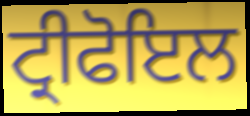
ਟ੍ਰੀਫੋਇਲ